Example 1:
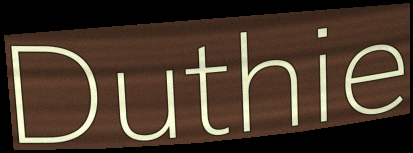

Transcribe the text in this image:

Duthie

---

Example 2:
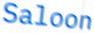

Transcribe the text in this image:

Saloon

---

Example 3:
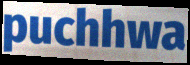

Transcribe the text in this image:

puchhwa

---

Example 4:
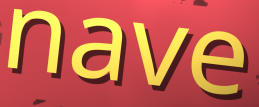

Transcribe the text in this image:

nave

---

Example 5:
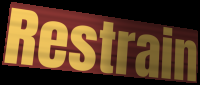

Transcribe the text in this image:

Restrain